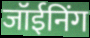
जॉईनिंग